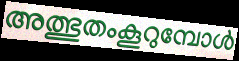
അത്ഭുതംകൂറുമ്പോൾ